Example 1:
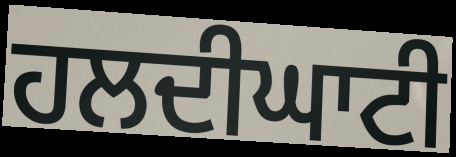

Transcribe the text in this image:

ਹਲਦੀਘਾਟੀ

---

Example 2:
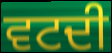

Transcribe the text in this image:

ਵਟਦੀ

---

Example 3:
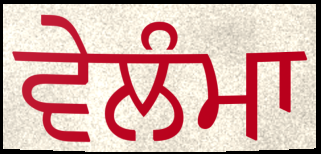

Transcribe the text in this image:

ਵੇਲੰਮਾ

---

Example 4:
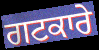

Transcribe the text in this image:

ਗਟਕਾਰੇ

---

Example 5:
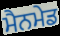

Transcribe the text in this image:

ਮੈਨਮੇਡ